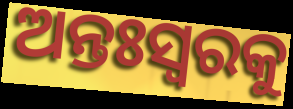
ଅନ୍ତଃସ୍ୱରକୁ